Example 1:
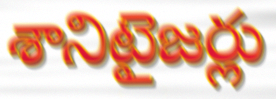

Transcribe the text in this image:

శానిటైజర్లు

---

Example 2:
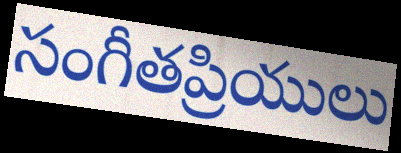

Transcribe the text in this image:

సంగీతప్రియులు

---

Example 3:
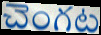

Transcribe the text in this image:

చెంగట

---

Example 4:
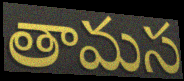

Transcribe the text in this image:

తామస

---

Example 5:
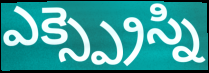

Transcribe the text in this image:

ఎక్స్ప్రెస్ని